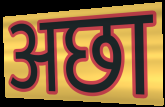
अछा